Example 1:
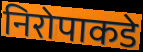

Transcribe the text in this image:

निरोपाकडे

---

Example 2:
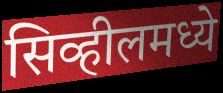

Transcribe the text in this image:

सिव्हीलमध्ये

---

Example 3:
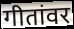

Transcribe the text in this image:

गीतांवर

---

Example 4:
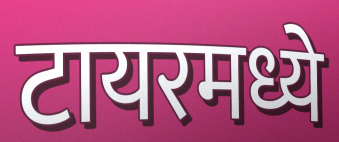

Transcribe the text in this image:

टायरमध्ये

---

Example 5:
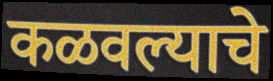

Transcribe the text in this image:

कळवल्याचे